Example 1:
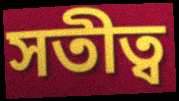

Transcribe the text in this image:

সতীত্ব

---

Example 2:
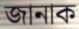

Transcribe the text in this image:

জানাক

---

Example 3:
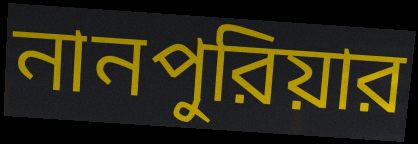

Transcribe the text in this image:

নানপুরিয়ার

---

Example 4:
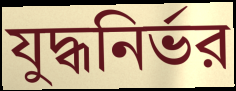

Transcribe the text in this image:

যুদ্ধনির্ভর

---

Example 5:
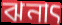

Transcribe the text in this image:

ঝনাৎ